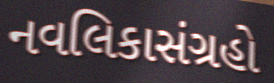
નવલિકાસંગ્રહો